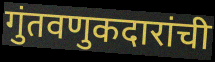
गुंतवणुकदारांची